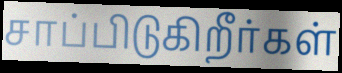
சாப்பிடுகிறீர்கள்